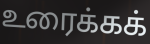
உரைக்கக்